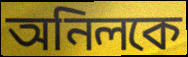
অনিলকে